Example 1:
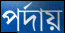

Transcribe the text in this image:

পর্দায়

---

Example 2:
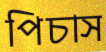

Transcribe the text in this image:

পিচাস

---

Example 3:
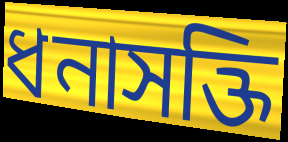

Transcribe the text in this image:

ধনাসক্তি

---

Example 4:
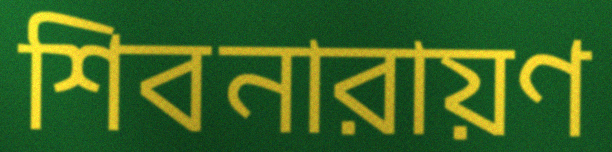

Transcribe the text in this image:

শিবনারায়ণ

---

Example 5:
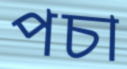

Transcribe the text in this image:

পচা